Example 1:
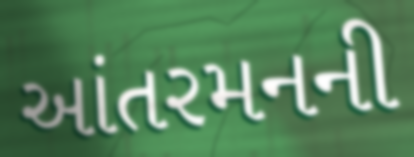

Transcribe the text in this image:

આંતરમનની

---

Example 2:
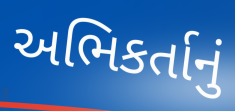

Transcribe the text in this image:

અભિકર્તાનું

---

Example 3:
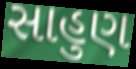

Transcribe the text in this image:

સાહુણ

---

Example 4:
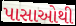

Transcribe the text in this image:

પાસાઓથી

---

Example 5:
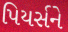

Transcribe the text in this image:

પિયર્સને